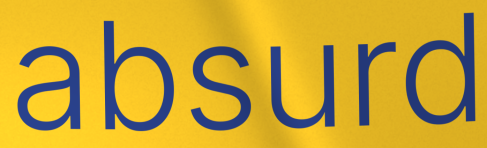
absurd